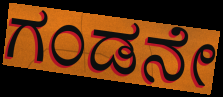
ಗಂಡನೇ